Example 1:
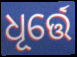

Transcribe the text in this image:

ଧୂର୍ତ୍ତେ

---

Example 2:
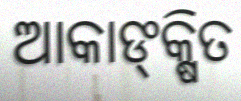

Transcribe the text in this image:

ଆକାଙ୍‍କ୍ଷିତ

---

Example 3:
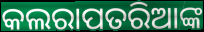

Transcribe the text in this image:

କଲରାପତରିଆଙ୍କ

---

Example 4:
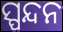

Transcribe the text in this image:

ସ୍ପନ୍ଦନ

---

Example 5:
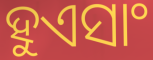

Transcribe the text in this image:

ହୁଏସାଂ